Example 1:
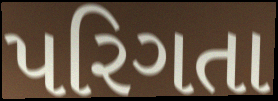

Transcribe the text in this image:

પરિગતા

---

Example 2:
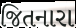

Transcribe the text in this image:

જિતનારા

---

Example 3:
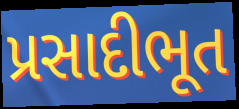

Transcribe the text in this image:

પ્રસાદીભૂત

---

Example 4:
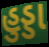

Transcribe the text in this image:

હુડ્ડા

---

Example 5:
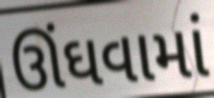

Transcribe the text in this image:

ઊંઘવામાં